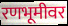
रणभूमीवर